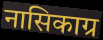
नासिकाग्र